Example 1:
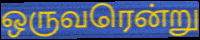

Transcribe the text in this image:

ஒருவரென்று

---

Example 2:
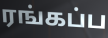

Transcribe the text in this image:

ரங்கப்ப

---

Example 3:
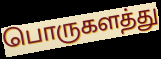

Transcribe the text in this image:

பொருகளத்து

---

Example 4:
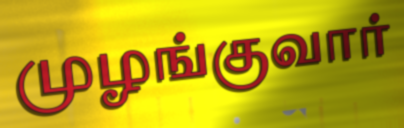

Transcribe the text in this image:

முழங்குவார்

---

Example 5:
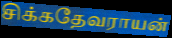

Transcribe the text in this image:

சிக்கதேவராயன்